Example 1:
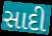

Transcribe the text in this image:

સાદી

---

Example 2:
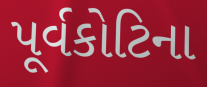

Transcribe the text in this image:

પૂર્વકોટિના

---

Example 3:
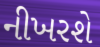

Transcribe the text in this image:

નીખરશે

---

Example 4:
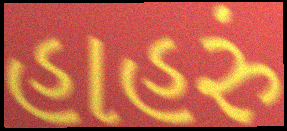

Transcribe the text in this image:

હાહરું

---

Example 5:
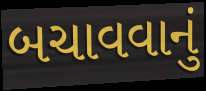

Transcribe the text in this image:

બચાવવાનું